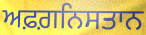
ਅਫ਼ਗ਼ਨਿਸਤਾਨ